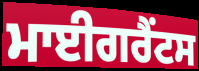
ਮਾਈਗਰੈਂਟਸ